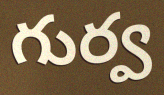
గుర్వ